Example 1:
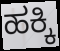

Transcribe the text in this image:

ಹಕ್ಕಿ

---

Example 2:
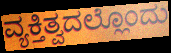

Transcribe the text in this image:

ವ್ಯಕ್ತಿತ್ವದಲ್ಲೊಂದು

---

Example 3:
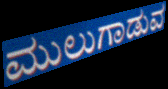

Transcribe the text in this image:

ಮುಲುಗಾಡುವ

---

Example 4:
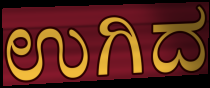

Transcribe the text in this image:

ಉಗಿದ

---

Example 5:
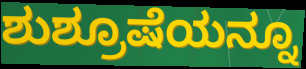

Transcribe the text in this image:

ಶುಶ್ರೂಷೆಯನ್ನೂ